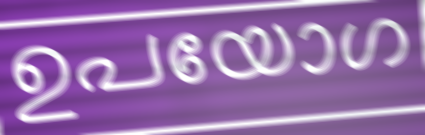
ഉപയോഗ